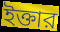
ইক্তার